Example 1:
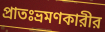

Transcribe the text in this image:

প্রাতঃভ্রমণকারীর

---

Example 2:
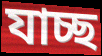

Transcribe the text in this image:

যাচ্ছ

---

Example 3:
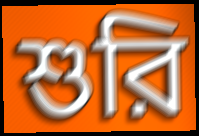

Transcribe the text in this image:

শুরি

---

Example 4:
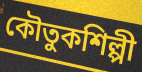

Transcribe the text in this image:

কৌতুকশিল্পী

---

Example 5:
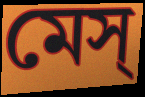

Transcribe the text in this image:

মেস্